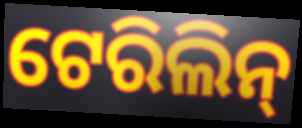
ଟେରିଲିନ୍